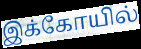
இக்கோயில்